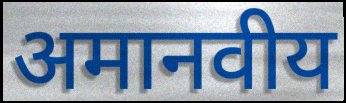
अमानवीय